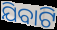
ଯିବାଟି